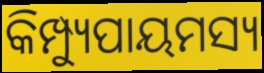
କିମ୍ପ୍ୟୁପାୟମସ୍ୟ